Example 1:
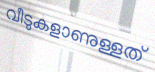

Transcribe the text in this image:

വീടുകളാണുള്ളത്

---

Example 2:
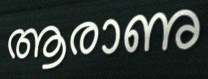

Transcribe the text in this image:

ആരാണു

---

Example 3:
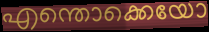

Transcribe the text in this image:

എന്തൊക്കെയോ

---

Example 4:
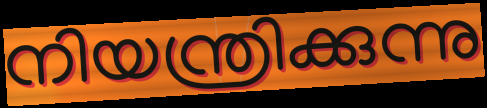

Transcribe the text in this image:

നിയന്ത്രിക്കുന്നു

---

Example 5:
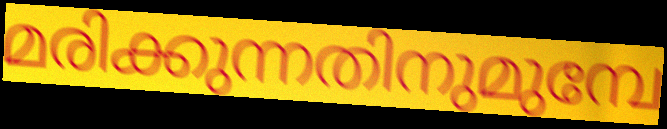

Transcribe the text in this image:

മരിക്കുന്നതിനുമുമ്പേ